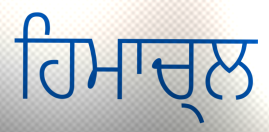
ਹਿਮਾਚ੍ਲ